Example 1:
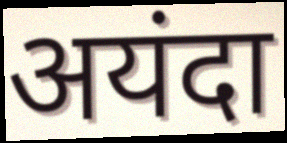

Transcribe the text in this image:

अयंदा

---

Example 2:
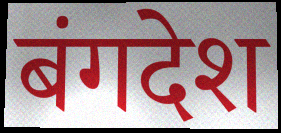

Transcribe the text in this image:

बंगदेश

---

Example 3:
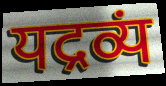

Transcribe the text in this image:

यद्रव्यं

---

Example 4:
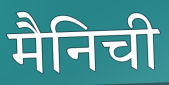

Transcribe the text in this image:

मैनिची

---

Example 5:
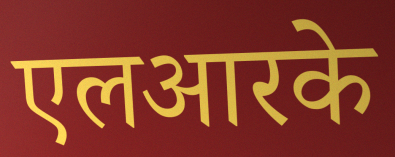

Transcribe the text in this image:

एलआरके